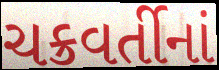
ચક્રવર્તીનાં